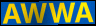
AWWA